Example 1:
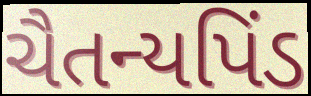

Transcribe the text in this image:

ચૈતન્યપિંડ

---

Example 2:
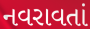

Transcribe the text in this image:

નવરાવતાં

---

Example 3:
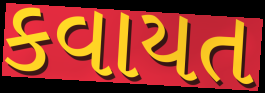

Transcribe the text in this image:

કવાયત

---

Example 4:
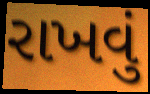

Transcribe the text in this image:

રાખવું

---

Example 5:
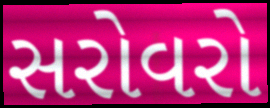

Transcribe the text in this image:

સરોવરો